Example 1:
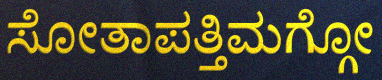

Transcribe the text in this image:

ಸೋತಾಪತ್ತಿಮಗ್ಗೋ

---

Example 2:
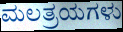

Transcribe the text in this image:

ಮಲತ್ರಯಗಳು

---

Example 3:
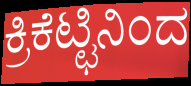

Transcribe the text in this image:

ಕ್ರಿಕೆಟ್ಟಿನಿಂದ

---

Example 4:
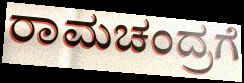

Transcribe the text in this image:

ರಾಮಚಂದ್ರಗೆ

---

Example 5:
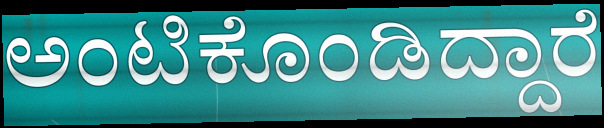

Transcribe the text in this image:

ಅಂಟಿಕೊಂಡಿದ್ದಾರೆ